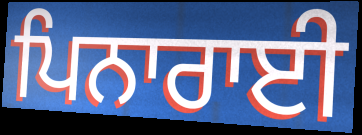
ਪਿਨਾਰਾਈ